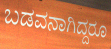
ಬಡವನಾಗಿದ್ದರೂ